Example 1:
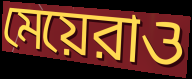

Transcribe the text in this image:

মেয়েরাও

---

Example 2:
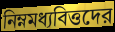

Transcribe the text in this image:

নিম্নমধ্যবিত্তদের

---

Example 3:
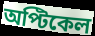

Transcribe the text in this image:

অপ্টিকেল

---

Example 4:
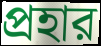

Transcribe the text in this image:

প্রহার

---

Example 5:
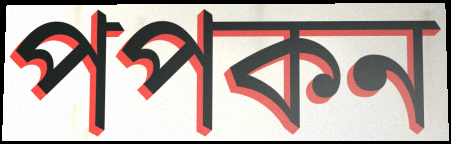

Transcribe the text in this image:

পপকন